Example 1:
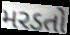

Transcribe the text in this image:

મરડતો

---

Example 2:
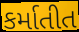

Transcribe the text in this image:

કર્માતીત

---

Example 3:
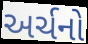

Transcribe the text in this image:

અર્ચનો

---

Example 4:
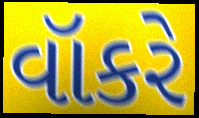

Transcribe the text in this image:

વૉકરે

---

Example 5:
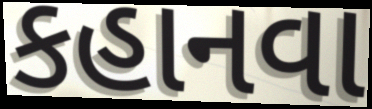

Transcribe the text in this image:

કહાનવા